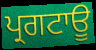
ਪ੍ਰਗਟਾਊ